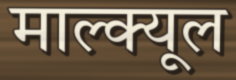
माल्क्यूल